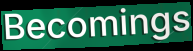
Becomings